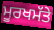
ਮੂਰਖਮੱਤੇ